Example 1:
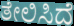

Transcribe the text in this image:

ತೇಲಿಸಿದೆ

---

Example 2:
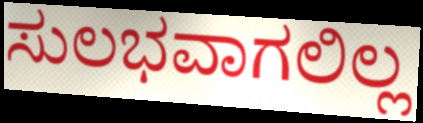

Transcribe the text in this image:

ಸುಲಭವಾಗಲಿಲ್ಲ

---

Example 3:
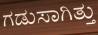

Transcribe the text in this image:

ಗಡುಸಾಗಿತ್ತು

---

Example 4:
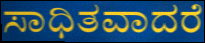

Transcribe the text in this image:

ಸಾಧಿತವಾದರೆ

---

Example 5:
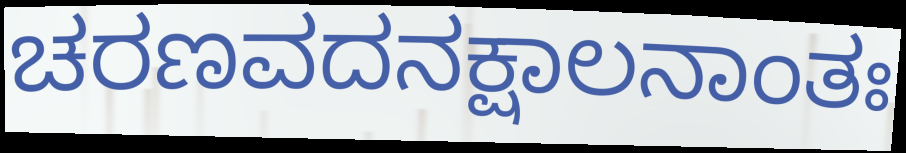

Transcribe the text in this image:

ಚರಣವದನಕ್ಷಾಲನಾಂತಃ